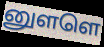
னுளளெ